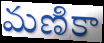
మణికా